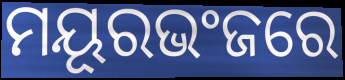
ମୟୂରଭଂଜରେ